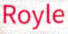
Royle